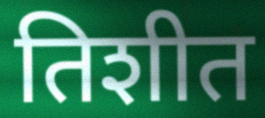
तिशीत